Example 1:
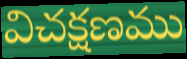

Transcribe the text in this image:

విచక్షణము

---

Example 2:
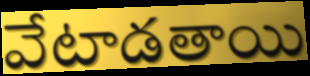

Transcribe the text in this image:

వేటాడతాయి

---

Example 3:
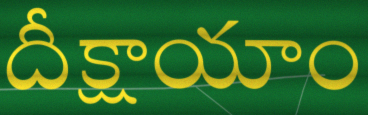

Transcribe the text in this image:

దీక్షాయాం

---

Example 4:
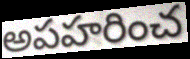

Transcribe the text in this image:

అపహరించ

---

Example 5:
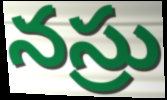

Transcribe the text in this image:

నస్రు